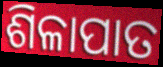
ଶିଳାପାତ